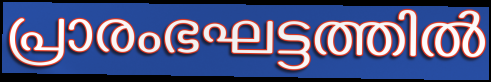
പ്രാരംഭഘട്ടത്തിൽ